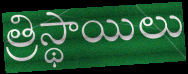
త్రిస్థాయిలు